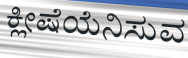
ಕ್ಲೀಷೆಯೆನಿಸುವ